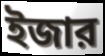
ইজার